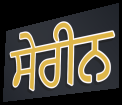
ਸੇਰੀਨ